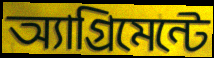
অ্যাগ্রিমেন্টে